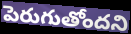
పెరుగుతోందని